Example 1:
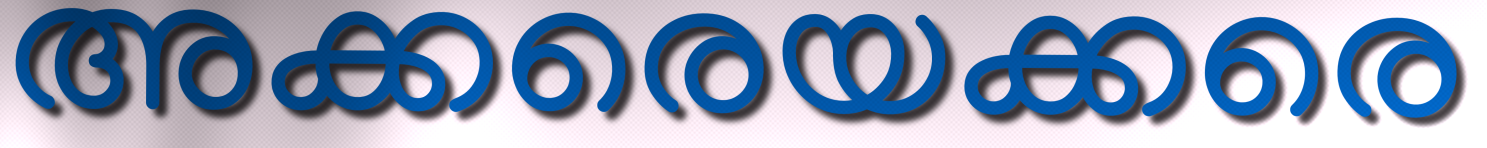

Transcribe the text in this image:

അക്കരെയക്കരെ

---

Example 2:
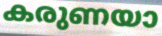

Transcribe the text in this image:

കരുണയാ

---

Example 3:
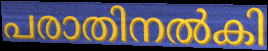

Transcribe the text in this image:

പരാതിനൽകി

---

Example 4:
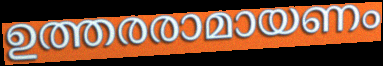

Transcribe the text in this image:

ഉത്തരരാമായണം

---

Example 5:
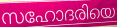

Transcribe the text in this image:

സഹോദരിയെ